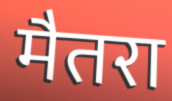
मैतरा